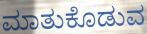
ಮಾತುಕೊಡುವ